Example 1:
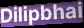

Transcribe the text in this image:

Dilipbhai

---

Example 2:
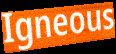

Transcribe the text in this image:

Igneous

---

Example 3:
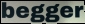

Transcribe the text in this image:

begger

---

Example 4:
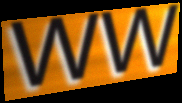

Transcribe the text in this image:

ww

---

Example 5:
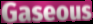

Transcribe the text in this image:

Gaseous